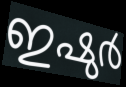
ഇഷുർ